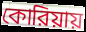
কোরিয়ায়